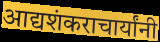
आद्यशंकराचार्यांनी